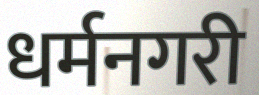
धर्मनगरी